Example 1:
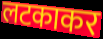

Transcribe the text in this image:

लटकाकर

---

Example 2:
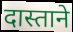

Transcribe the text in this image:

दास्ताने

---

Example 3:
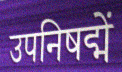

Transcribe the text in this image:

उपनिषद्में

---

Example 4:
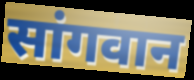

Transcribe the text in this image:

सांगवान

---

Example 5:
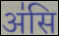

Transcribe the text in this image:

अ॑सि